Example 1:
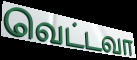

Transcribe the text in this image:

வெட்டவா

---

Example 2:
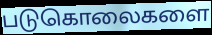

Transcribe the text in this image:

படுகொலைகளை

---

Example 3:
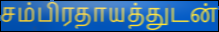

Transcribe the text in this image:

சம்பிரதாயத்துடன்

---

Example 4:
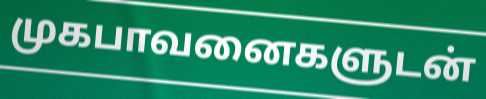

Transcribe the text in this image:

முகபாவனைகளுடன்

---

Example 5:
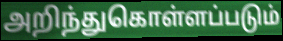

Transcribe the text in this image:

அறிந்துகொள்ளப்படும்